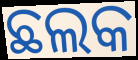
ଛଲକ